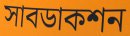
সাবডাকশন